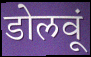
डोलवूं